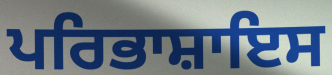
ਪਰਿਭਾਸ਼ਾਇਸ